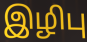
இழிபு